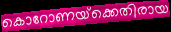
കൊറോണയ്‌ക്കെതിരായ